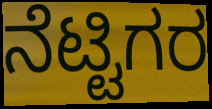
ನೆಟ್ಟಿಗರ